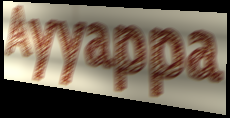
Ayyappa